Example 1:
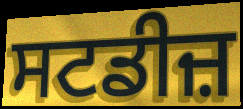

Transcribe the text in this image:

ਸਟਡੀਜ਼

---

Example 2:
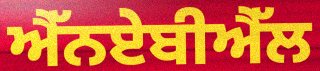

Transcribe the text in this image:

ਐੱਨਏਬੀਐੱਲ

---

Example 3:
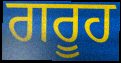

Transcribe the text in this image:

ਗਰੂਹ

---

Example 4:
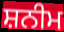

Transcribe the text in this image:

ਸ਼ਨੀਮ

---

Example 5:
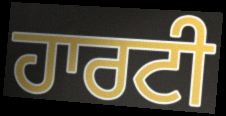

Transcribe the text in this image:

ਹਾਰਟੀ